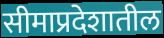
सीमाप्रदेशातील